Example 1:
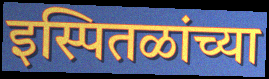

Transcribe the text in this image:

इस्पितळांच्या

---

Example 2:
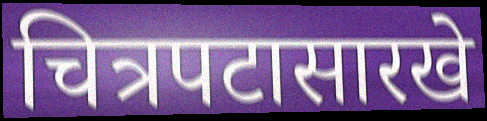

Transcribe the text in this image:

चित्रपटासारखे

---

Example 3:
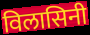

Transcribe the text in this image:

विलासिनी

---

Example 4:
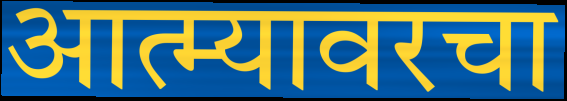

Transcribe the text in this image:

आत्म्यावरचा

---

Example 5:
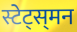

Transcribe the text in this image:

स्टेट्स्‌मन